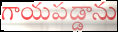
గాయపడ్డాను